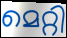
മെറ്റി